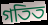
গতিত